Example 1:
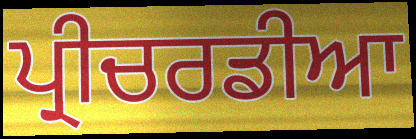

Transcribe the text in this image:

ਪ੍ਰੀਚਰਡੀਆ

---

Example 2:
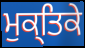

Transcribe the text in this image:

ਮੁਕ੍ਤਿਕੇ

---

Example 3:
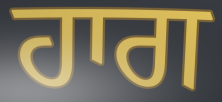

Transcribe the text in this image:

ਹਾਗ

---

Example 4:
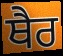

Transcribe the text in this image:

ਥੈਰ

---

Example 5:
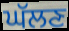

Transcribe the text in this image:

ਘੱਲਣ